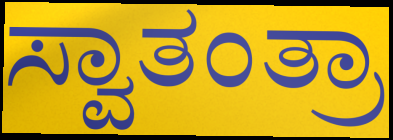
ಸ್ವಾತಂತ್ರಾ